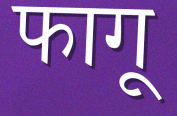
फागू